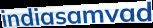
indiasamvad